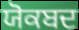
ਯੋਕਬਦ